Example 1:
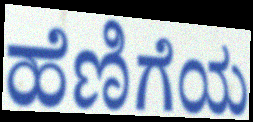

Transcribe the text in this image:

ಹೆಣಿಗೆಯ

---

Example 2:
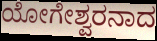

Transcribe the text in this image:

ಯೋಗೇಶ್ವರನಾದ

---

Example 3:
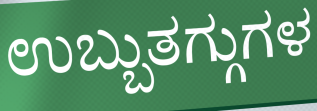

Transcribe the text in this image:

ಉಬ್ಬುತಗ್ಗುಗಳ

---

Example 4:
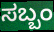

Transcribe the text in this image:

ಸಬ್ಬಂ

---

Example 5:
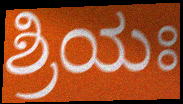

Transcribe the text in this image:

ಶ್ರಿಯಃ